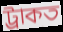
ট্ৰাকত